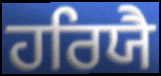
ਹਰਿਯੈ